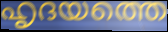
ഹൃദയത്തെ